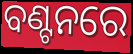
ବଣ୍ଟନରେ